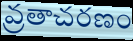
వ్రతాచరణం